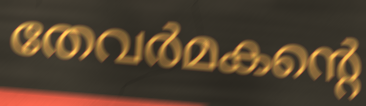
തേവർമകന്റെ